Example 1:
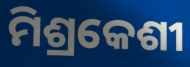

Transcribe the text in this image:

ମିଶ୍ରକେଶୀ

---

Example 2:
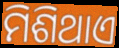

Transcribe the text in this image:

ମିଶିଥାଏ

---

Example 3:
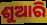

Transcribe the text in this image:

ଶୁଆରି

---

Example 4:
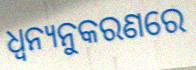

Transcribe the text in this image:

ଧ୍ଵନ୍ୟନୁକରଣରେ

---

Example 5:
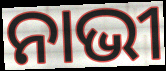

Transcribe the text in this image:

ନାଭୀ